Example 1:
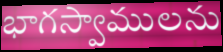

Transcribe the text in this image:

భాగస్వాములను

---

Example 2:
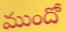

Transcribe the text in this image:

ముందో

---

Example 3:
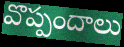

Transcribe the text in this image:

వొప్పందాలు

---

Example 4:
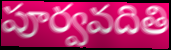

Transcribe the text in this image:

పూర్వవదితి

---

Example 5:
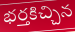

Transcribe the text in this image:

భర్తకిచ్చిన